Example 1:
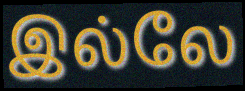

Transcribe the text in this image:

இல்லே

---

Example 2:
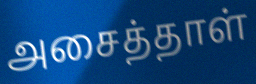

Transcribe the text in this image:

அசைத்தாள்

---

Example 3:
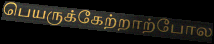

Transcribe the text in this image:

பெயருக்கேற்றாற்போல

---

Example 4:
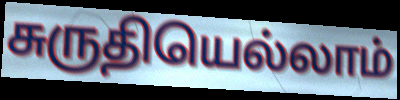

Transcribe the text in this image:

சுருதியெல்லாம்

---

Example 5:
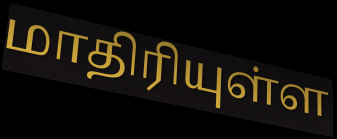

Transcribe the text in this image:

மாதிரியுள்ள